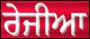
ਰੇਜੀਆ